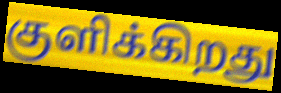
குளிக்கிறது